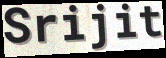
Srijit